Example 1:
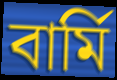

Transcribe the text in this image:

বার্মি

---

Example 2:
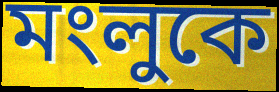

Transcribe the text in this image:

মংলুকে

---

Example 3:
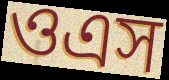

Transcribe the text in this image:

ওএস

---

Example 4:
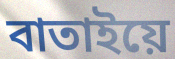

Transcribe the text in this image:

বাতাইয়ে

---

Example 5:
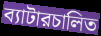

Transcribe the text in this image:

ব্যাটারচালিত